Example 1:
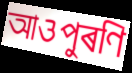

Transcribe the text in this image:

আওপুৰণি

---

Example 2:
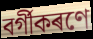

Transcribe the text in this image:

বৰ্গীকৰণে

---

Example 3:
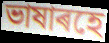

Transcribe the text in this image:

ভাষাৰহে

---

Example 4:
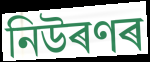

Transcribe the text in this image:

নিউৰণৰ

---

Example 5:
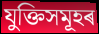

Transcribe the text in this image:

যুক্তিসমূহৰ